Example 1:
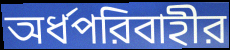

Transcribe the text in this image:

অর্ধপরিবাহীর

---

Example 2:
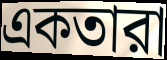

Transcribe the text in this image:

একতারা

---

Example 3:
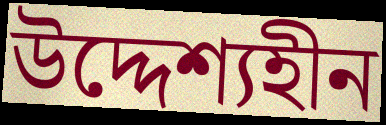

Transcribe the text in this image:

উদ্দেশ্যহীন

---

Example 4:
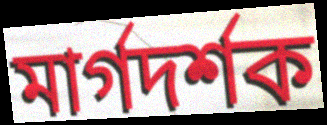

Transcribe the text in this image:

মার্গদর্শক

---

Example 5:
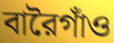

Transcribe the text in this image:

বারৈগাঁও